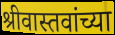
श्रीवास्तवांच्या